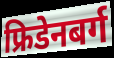
फ्रिडेनबर्ग